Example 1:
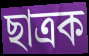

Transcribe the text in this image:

ছাত্ৰক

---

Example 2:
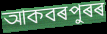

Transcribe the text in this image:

আকবৰপুৰৰ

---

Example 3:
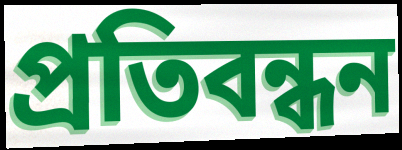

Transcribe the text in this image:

প্ৰতিবন্ধন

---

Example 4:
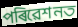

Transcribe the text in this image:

পৰিৱেশনত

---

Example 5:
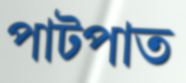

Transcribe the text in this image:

পাটপাত